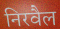
निरवैल